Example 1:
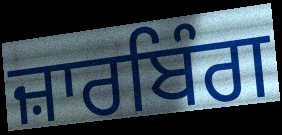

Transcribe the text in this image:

ਜ਼ਾਰਬਿੰਗ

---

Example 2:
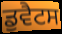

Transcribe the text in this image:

ਡੁਵੈਟਸ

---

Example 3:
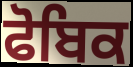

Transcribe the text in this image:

ਫੋਬਿਕ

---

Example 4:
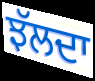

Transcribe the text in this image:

ਝੱਲਦਾ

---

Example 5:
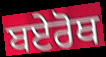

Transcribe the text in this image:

ਬਏਰੋਥ